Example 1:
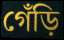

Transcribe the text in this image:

গেঁড়ি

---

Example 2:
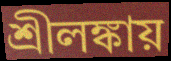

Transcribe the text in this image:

শ্রীলঙ্কায়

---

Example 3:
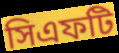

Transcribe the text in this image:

সিএফটি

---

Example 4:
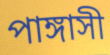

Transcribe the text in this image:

পাঙ্গাসী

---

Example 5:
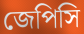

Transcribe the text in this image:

জেপিসি